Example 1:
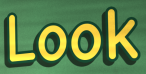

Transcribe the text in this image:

Look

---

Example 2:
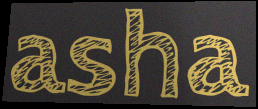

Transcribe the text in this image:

asha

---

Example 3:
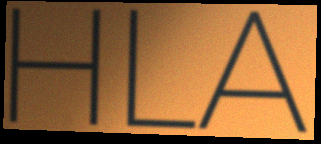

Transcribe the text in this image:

HLA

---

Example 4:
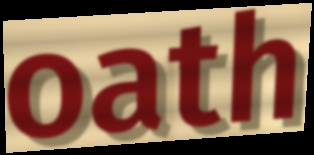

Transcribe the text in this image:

oath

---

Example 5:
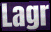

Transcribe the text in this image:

Lagr